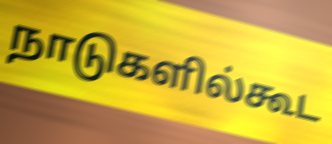
நாடுகளில்கூட